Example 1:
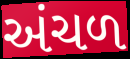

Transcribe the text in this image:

અંચળ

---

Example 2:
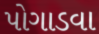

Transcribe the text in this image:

પોગાડવા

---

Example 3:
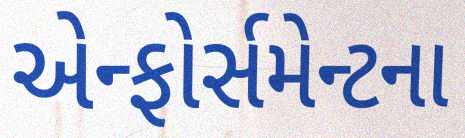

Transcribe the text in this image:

એન્ફોર્સમેન્ટના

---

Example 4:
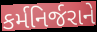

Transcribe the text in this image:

કર્મનિર્જરાને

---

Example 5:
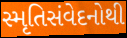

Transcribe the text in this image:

સ્મૃતિસંવેદનોથી